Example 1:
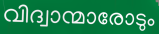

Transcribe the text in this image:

വിദ്വാന്മാരോടും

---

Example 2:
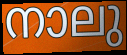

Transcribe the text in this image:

നാലു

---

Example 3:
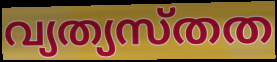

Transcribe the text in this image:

വ്യത്യസ്തത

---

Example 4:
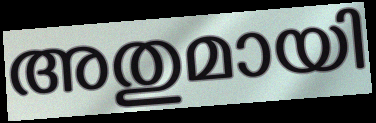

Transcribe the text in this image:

അതുമായി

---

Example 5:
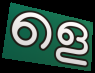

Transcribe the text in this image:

ളെ